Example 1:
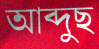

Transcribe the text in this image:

আব্দুছ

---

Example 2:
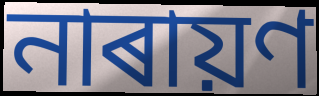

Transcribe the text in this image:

নাৰায়ণ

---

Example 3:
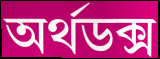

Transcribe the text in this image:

অৰ্থডক্স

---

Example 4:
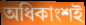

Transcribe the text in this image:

অধিকাংশই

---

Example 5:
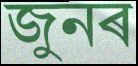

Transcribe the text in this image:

জুনৰ